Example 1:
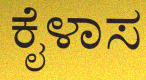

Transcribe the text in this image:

ಕೈಳಾಸ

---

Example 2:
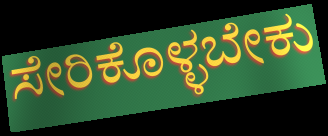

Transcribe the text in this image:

ಸೇರಿಕೊಳ್ಳಬೇಕು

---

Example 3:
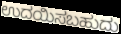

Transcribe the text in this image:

ಉದಯಿಸಬಹುದು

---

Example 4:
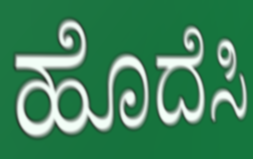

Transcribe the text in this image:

ಹೊದೆಸಿ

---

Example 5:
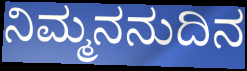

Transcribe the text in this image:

ನಿಮ್ಮನನುದಿನ